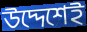
উদ্দেশেই